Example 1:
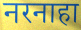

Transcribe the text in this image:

नरनाहा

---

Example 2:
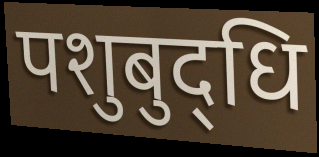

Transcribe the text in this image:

पशुबुद्धि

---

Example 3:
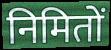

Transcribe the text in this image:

निमितों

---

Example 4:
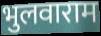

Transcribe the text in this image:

भुलवाराम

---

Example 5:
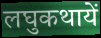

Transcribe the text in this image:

लघुकथायें